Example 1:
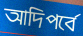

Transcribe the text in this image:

আদিপর্বে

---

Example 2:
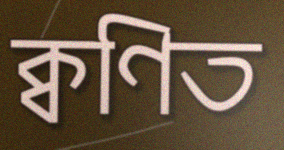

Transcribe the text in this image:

ক্বণিত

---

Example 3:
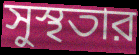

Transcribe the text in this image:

সুস্থতার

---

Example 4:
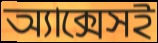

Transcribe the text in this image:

অ্যাক্সেসই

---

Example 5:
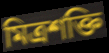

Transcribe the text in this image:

মিত্রশক্তি